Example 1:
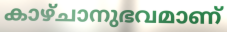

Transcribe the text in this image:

കാഴ്ചാനുഭവമാണ്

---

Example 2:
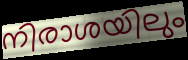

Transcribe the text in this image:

നിരാശയിലും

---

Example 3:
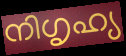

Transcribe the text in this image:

നിഗൃഹ്യ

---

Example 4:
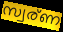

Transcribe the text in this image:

സ്വര്ണ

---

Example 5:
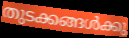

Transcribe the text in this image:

തുടക്കങ്ങൾക്കു